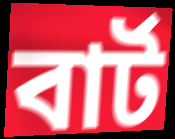
বার্ট